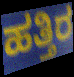
ಹತ್ತಿರ